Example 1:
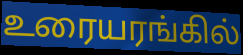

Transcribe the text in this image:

உரையரங்கில்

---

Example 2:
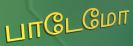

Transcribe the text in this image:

பாடேமோ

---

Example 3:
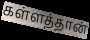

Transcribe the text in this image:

கள்ளத்தான்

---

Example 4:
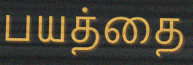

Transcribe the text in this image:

பயத்தை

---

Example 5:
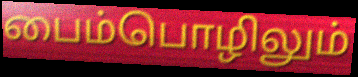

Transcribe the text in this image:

பைம்பொழிலும்